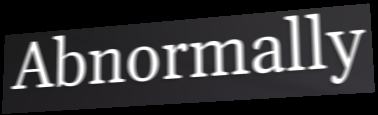
Abnormally